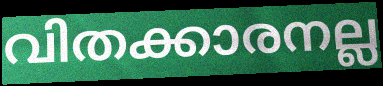
വിതക്കാരനല്ല